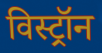
विस्ट्रॉन